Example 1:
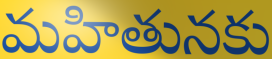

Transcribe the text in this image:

మహితునకు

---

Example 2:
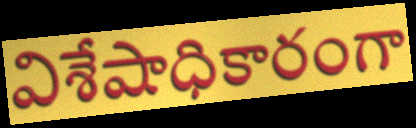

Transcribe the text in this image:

విశేషాధికారంగా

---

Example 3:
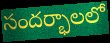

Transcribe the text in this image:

సందర్భాలలో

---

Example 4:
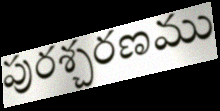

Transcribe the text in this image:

పురశ్చరణము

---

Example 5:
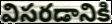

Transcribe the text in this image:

విసరడానికి